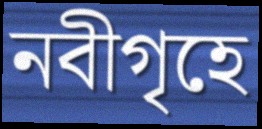
নবীগৃহে